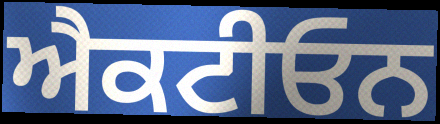
ਐਕਟੀਓਨ